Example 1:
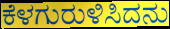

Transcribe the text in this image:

ಕೆಳಗುರುಳಿಸಿದನು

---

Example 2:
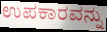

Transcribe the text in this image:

ಉಪಕಾರವನ್ನು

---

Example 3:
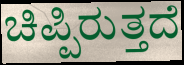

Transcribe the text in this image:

ಚಿಪ್ಪಿರುತ್ತದೆ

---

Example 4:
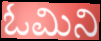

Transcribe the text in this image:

ಓಮಿನಿ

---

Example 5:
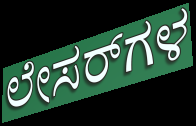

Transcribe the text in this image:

ಲೇಸರ್‌ಗಳ